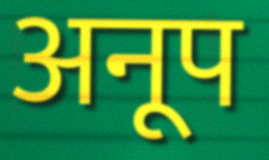
अनूप